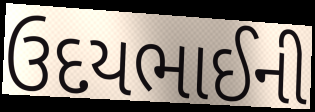
ઉદયભાઈની